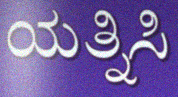
ಯತ್ನಿಸಿ